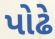
પોઢે